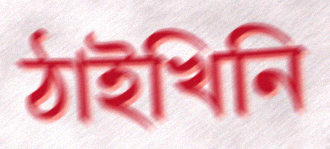
ঠাইখিনি